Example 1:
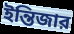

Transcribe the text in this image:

ইন্তিজার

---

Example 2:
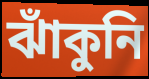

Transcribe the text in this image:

ঝাঁকুনি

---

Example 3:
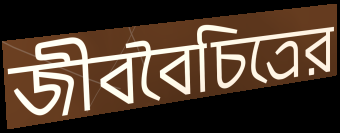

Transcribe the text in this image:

জীববৈচিত্রের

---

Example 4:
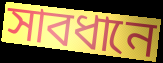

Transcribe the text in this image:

সাবধানে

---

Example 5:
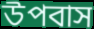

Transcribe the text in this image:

উপবাস